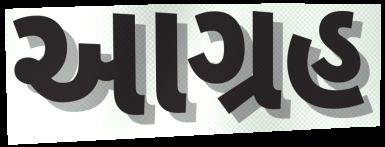
આગ્રહ